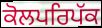
ਕੋਲਪਰਿਪੱਕ